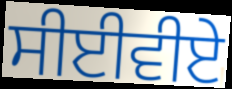
ਸੀਈਵੀਏ